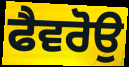
ਫੈਵਰੋਉ